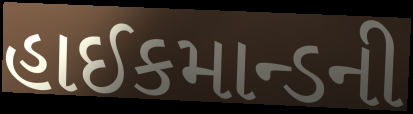
હાઈકમાન્ડની